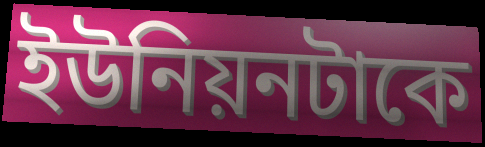
ইউনিয়নটাকে